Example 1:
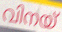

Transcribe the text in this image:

വിനയ്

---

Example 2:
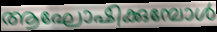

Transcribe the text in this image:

ആഘോഷിക്കുമ്പോൾ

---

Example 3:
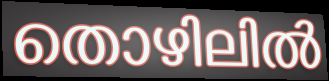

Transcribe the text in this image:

തൊഴിലിൽ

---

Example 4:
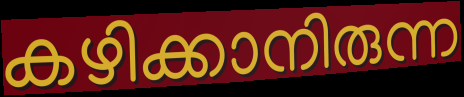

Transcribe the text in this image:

കഴിക്കാനിരുന്ന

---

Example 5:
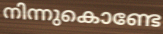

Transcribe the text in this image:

നിന്നുകൊണ്ടേ